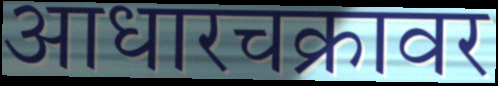
आधारचक्रावर